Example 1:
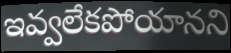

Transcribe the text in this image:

ఇవ్వలేకపోయానని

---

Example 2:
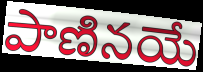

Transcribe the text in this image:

పాణినయే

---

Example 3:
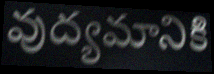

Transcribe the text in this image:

వుద్యమానికి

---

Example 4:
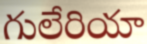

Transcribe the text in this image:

గులేరియా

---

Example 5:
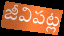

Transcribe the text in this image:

జీవిపట్ల